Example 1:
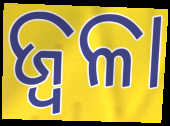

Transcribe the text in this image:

ଜ୍ୱଳା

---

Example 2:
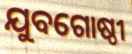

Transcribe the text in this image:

ଯୁବଗୋଷ୍ଠୀ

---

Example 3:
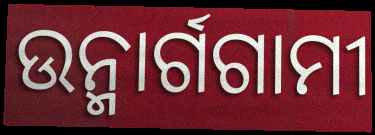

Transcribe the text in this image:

ଉନ୍ମାର୍ଗଗାମୀ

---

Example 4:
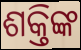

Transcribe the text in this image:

ଶକ୍ତିଙ୍କ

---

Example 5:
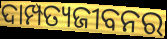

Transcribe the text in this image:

ଦାମ୍ପତ୍ୟଜୀବନର